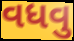
વધવુ